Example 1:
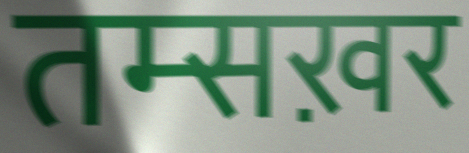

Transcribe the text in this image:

तम्सख़र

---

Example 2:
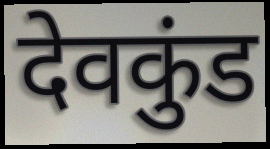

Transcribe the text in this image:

देवकुंड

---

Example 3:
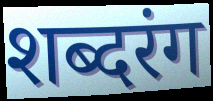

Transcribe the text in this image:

शब्दरंग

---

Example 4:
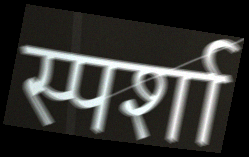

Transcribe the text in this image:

स्पर्शा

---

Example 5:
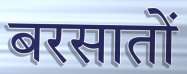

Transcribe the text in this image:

बरसातों